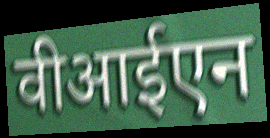
वीआईएन